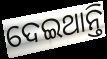
ଦେଇଥାନ୍ତି